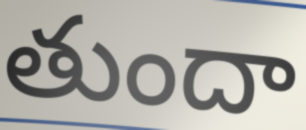
తుందా